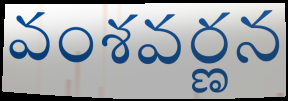
వంశవర్ణన